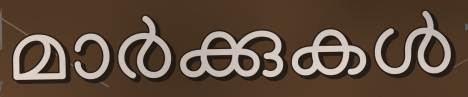
മാർക്കുകൾ